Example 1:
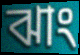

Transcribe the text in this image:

ঝাং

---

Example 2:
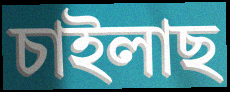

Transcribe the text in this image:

চাইলাছ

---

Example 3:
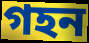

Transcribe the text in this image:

গহন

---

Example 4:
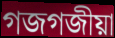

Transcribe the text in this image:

গজগজীয়া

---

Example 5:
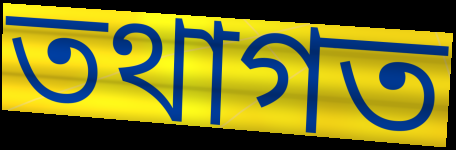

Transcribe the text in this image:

তথাগত